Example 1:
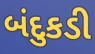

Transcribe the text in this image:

બંદુકડી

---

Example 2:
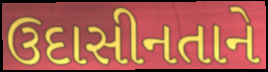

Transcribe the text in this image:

ઉદાસીનતાને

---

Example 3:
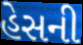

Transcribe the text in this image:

હેસની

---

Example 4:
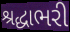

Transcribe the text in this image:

શ્રદ્ધાભરી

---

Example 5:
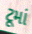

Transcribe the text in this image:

ટૂમાં